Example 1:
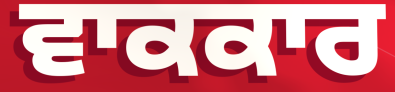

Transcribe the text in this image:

ਵਾਕਕਾਰ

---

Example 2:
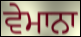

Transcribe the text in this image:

ਵੇਮਾਨਾ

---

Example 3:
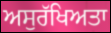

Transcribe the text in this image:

ਅਸੁਰੱਖਿਅਤਾ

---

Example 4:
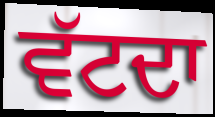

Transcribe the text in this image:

ਵੱਟਦਾ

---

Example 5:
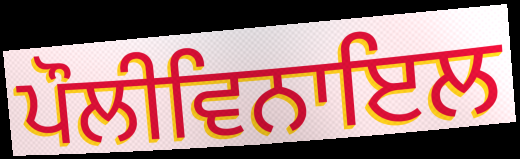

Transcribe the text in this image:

ਪੌਲੀਵਿਨਾਇਲ